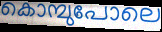
കൊമ്പുപോലെ